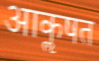
आकॢषत